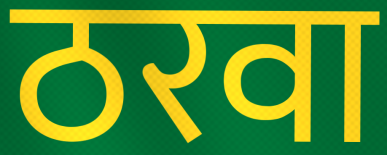
ठरवा